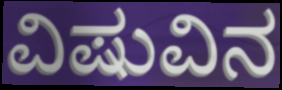
ವಿಷುವಿನ